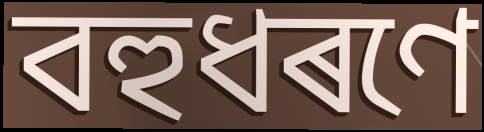
বহুধৰণে